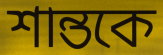
শান্তকে